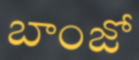
బాంజో